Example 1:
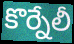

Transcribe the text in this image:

కొర్నేలీ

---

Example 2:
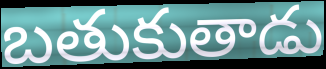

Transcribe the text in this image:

బతుకుతాడు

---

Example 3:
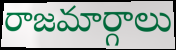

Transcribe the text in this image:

రాజమార్గాలు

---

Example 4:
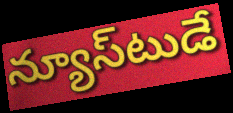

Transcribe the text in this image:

న్యూస్‌టుడే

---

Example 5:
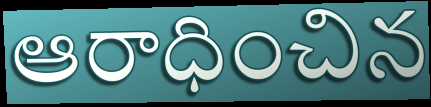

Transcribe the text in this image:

ఆరాధించిన